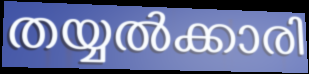
തയ്യൽക്കാരി